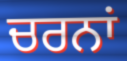
ਚਰਨਾਂ